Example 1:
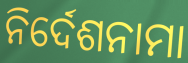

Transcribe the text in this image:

ନିର୍ଦେଶନାମା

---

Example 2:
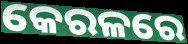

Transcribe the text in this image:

କେରଳରେ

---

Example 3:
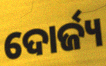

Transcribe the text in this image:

ଦୋର୍ଜ୍ୟ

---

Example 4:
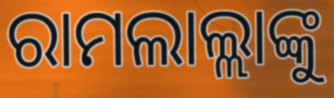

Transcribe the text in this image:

ରାମଲାଲ୍ଲାଙ୍କୁ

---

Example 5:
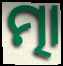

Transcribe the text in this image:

ତ୍ମା